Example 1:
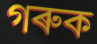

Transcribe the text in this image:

গৰুক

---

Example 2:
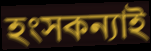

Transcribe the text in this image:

হংসকন্যাই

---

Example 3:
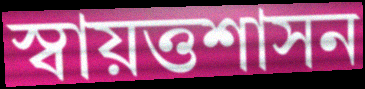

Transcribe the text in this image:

স্বায়ত্তশাসন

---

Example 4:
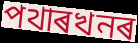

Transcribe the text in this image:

পথাৰখনৰ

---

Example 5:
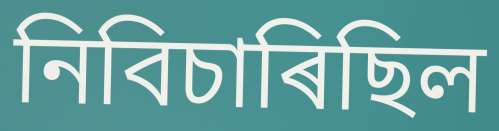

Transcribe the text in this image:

নিবিচাৰিছিল